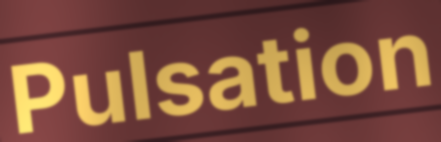
Pulsation